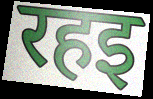
रहइ